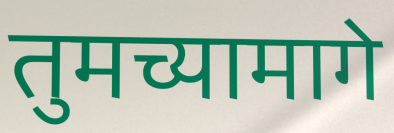
तुमच्यामागे